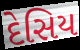
દેસિય